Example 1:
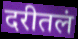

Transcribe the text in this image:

दरीतलं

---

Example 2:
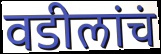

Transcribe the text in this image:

वडीलांचं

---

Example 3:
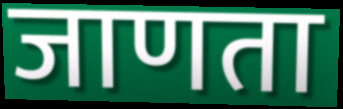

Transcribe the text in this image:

जाणता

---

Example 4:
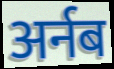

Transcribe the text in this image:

अर्नब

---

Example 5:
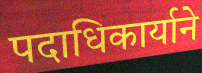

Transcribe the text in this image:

पदाधिकार्याने